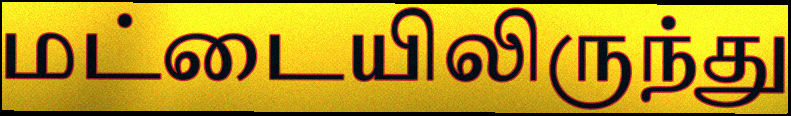
மட்டையிலிருந்து